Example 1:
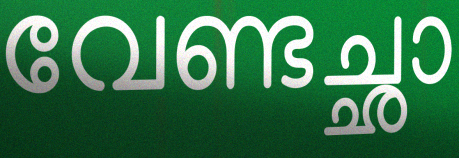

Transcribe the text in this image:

വേണ്ടച്ഛാ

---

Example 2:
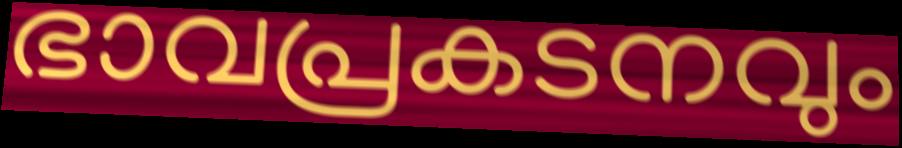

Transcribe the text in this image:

ഭാവപ്രകടനവും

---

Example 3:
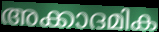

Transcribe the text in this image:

അക്കാദമിക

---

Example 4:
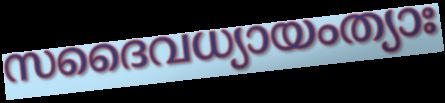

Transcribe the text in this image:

സദൈവധ്യായംത്യാഃ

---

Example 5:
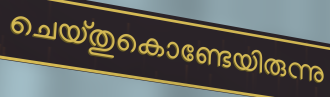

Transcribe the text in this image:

ചെയ്തുകൊണ്ടേയിരുന്നു